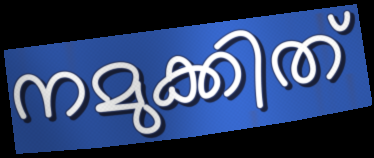
നമുക്കിത്